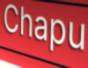
Chapu